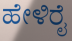
ಹೇಳಿರೈ